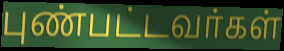
புண்பட்டவர்கள்